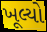
ખૂલ્યો